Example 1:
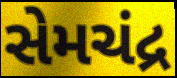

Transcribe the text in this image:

સેમચંદ્ર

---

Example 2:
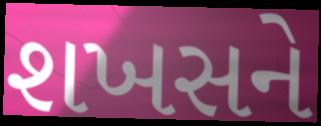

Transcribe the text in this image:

શખસને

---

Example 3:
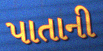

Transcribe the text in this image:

પાતાની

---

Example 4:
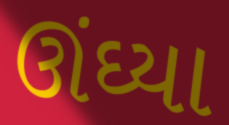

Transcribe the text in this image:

ઊંઘ્યા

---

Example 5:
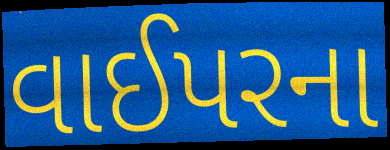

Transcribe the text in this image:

વાઈપરના